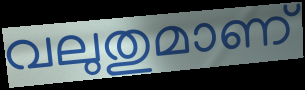
വലുതുമാണ്